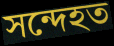
সন্দেহত